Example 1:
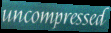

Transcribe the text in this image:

uncompressed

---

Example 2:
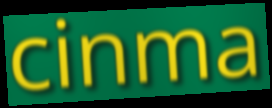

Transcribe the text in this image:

cinma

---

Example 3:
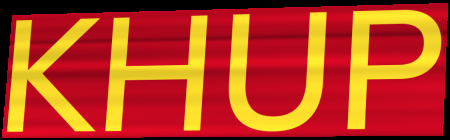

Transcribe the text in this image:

KHUP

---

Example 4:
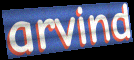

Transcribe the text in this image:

arvind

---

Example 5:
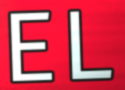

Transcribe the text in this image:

EL